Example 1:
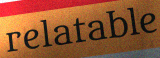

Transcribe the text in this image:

relatable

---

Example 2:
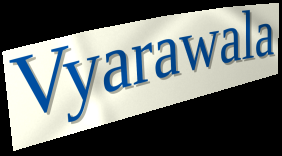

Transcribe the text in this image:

Vyarawala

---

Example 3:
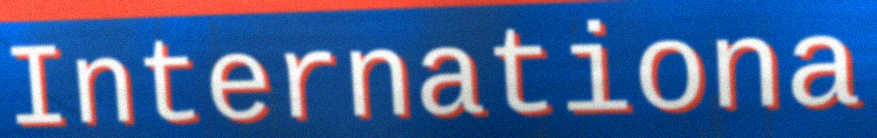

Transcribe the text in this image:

Internationa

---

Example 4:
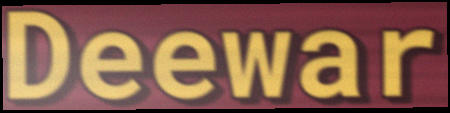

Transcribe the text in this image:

Deewar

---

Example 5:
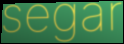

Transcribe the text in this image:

segar